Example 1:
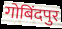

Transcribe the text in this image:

गोबिंदपुर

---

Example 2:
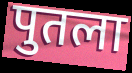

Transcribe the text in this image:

पुतला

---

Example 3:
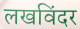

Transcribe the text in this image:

लखविंदर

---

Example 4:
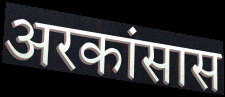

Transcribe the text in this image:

अरकांसास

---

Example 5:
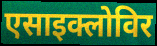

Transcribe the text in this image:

एसाइक्लोविर